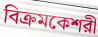
বিক্রমকেশরী